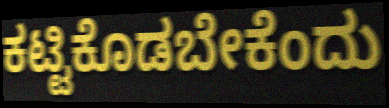
ಕಟ್ಟಿಕೊಡಬೇಕೆಂದು